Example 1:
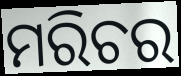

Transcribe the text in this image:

ମରିଚର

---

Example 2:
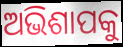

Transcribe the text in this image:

ଅଭିଶାପକୁ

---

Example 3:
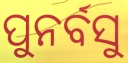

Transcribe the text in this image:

ପୁନର୍ବସୁ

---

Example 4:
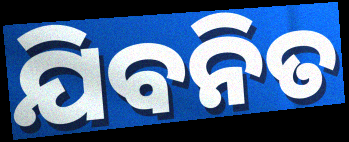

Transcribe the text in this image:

ଯିବନିତ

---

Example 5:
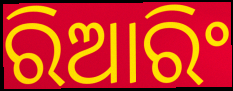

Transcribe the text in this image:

ରିଆରିଂ